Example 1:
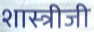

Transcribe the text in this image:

शास्त्रीजी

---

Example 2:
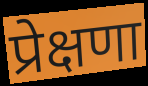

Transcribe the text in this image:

प्रेक्षणा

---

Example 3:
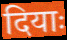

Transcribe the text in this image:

दियाः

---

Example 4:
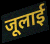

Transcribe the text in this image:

जूलाई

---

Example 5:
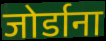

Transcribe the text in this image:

जोर्डाना